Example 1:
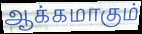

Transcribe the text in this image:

ஆக்கமாகும்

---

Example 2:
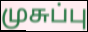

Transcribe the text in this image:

முசுப்பு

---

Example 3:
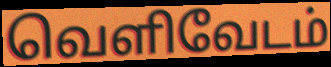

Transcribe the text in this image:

வெளிவேடம்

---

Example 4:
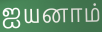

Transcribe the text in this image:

ஐயனாம்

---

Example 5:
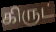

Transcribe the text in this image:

கிருட்